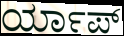
ರ್ಯಾಪ್